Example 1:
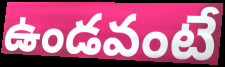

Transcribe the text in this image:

ఉండవంటే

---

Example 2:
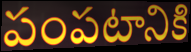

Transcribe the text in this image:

పంపటానికి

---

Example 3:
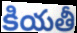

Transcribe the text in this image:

కియతీ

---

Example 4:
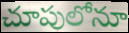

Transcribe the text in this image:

చూపులోనూ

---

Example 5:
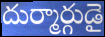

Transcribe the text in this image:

దుర్మార్గుడై